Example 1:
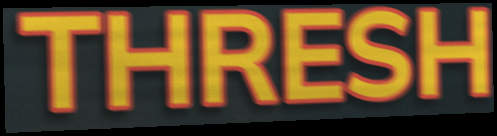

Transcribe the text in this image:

THRESH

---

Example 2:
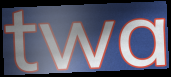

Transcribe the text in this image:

twa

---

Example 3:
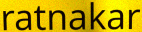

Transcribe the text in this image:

ratnakar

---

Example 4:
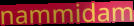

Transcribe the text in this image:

nammidam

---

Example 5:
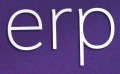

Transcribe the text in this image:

erp